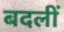
बदलीं